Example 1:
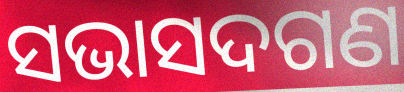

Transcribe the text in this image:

ସଭାସଦଗଣ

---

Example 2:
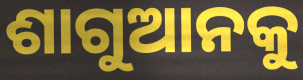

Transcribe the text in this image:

ଶାଗୁଆନକୁ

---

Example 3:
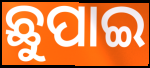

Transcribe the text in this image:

ଛୁପାଇ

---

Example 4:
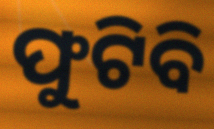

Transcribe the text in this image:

ଫୁଟିବି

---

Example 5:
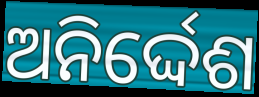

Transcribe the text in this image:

ଅନିର୍ଦ୍ଦେଶ